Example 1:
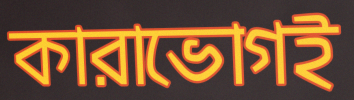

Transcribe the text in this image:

কারাভোগই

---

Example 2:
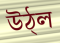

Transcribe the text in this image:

উঠ্ল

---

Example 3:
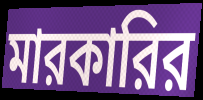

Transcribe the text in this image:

মারকারির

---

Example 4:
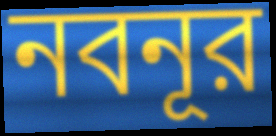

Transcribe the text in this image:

নবনূর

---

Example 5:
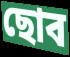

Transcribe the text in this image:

ছোব